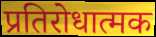
प्रतिरोधात्मक